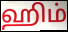
ஹிம்